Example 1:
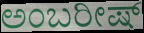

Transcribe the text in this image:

ಅಂಬರೀಷ್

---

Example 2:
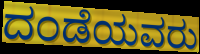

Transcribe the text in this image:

ದಂಡೆಯವರು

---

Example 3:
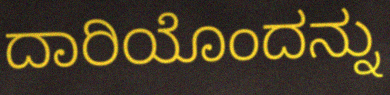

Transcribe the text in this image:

ದಾರಿಯೊಂದನ್ನು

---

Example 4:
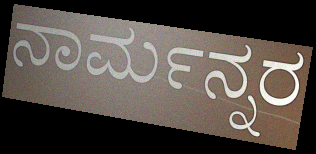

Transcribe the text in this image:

ನಾರ್ಮನ್ನರ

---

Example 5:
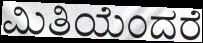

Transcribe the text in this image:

ಮಿತಿಯೆಂದರೆ